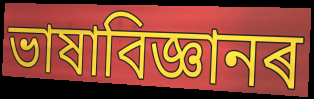
ভাষাবিজ্ঞানৰ